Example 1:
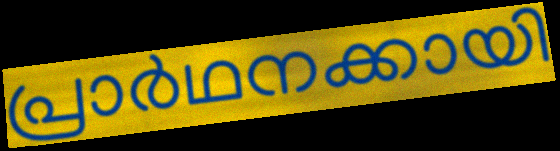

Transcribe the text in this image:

പ്രാർഥനക്കായി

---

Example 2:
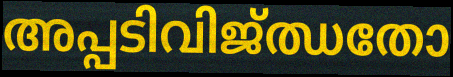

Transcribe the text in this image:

അപ്പടിവിജ്ഝതോ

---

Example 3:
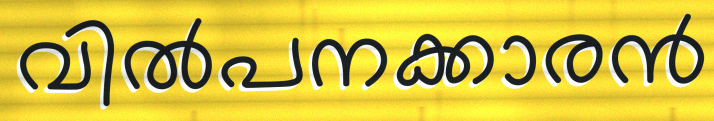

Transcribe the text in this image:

വിൽപനക്കാരൻ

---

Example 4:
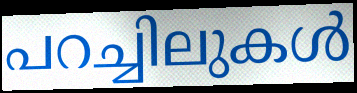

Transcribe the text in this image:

പറച്ചിലുകൾ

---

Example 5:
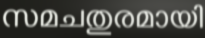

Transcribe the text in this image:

സമചതുരമായി